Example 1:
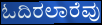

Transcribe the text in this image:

ಓದಿರಲಾರೆವು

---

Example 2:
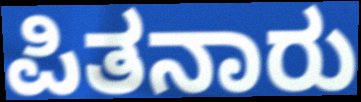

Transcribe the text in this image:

ಪಿತನಾರು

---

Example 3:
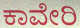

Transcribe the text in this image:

ಕಾವೇರಿ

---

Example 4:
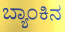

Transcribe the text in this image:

ಬ್ಯಾಂಕಿನ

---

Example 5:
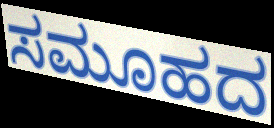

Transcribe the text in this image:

ಸಮೂಹದ